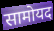
सामोयद